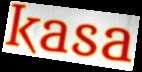
kasa